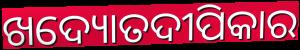
ଖଦ୍ୟୋତଦୀପିକାର